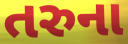
તરુના